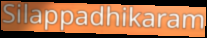
Silappadhikaram